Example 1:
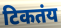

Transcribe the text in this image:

टिकतंय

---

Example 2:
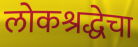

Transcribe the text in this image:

लोकश्रद्धेचा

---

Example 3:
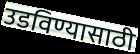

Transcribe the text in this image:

उडविण्यासाठी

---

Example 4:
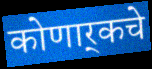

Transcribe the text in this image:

कोणार्कचे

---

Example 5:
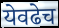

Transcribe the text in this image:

येवढेच